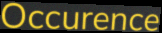
Occurence